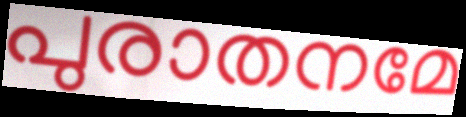
പുരാതനമേ